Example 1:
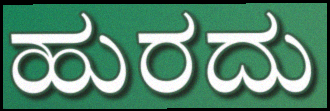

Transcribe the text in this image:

ಹುರದು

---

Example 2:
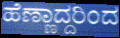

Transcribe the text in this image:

ಹೆಣ್ಣಾದ್ದರಿಂದ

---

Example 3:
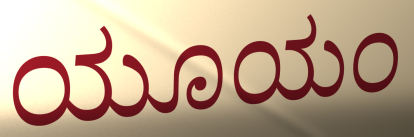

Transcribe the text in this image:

ಯೂಯಂ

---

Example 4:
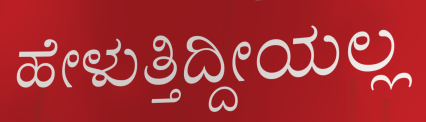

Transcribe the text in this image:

ಹೇಳುತ್ತಿದ್ದೀಯಲ್ಲ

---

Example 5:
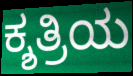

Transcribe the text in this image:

ಕ್ಶತ್ರಿಯ